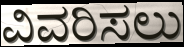
ವಿವರಿಸಲು